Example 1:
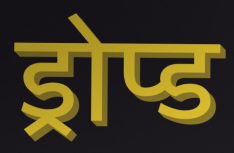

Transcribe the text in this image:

ड्रोप्ड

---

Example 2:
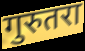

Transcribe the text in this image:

गुरुतरा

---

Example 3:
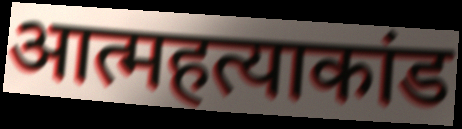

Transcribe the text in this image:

आत्महत्याकांड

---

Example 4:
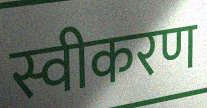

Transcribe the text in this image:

स्वीकरण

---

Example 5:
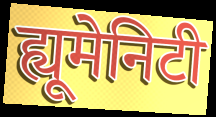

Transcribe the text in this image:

ह्यूमेनिटी